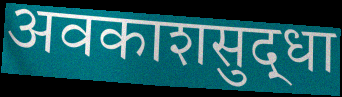
अवकाशसुद्धा